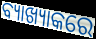
ବ୍ୟାଖ୍ୟାକରେ